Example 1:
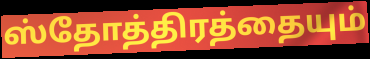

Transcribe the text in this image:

ஸ்தோத்திரத்தையும்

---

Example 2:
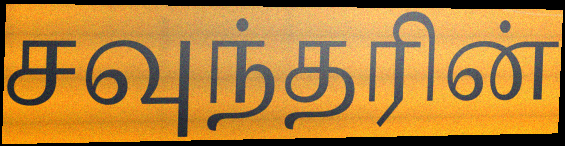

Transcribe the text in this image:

சவுந்தரின்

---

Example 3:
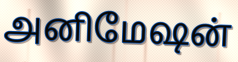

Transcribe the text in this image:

அனிமேஷன்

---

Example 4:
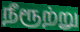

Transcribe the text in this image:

நீரூற்று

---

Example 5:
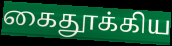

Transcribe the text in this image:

கைதூக்கிய